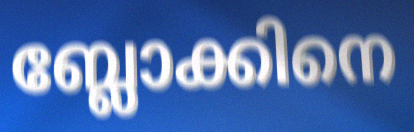
ബ്ലോക്കിനെ